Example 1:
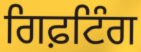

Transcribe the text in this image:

ਗਿਫ਼ਟਿੰਗ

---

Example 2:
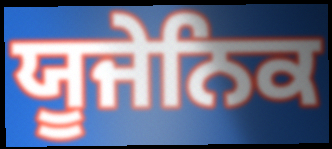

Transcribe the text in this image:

ਯੂਜੇਨਿਕ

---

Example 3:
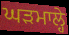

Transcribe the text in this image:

ਘੜਮਾਲ੍ਹੇ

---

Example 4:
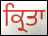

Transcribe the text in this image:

ਕ੍ਰਿਤਾ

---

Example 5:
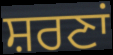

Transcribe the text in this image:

ਸ਼ਰਣਾਂ